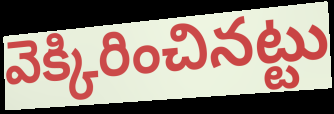
వెక్కిరించినట్టు